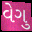
વેગુ